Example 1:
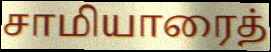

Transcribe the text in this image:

சாமியாரைத்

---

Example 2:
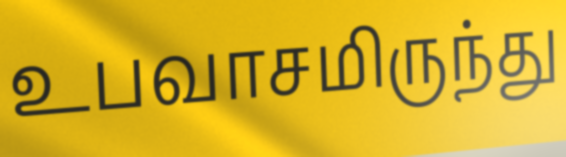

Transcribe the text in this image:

உபவாசமிருந்து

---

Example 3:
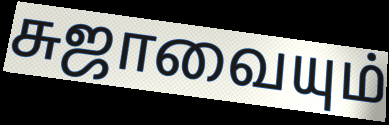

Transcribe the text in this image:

சுஜாவையும்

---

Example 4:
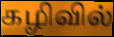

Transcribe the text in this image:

கழிவில்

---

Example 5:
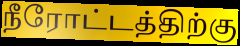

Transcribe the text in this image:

நீரோட்டத்திற்கு